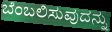
ಬೆಂಬಲಿಸುವುದನ್ನು